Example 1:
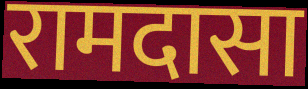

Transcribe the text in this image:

रामदासा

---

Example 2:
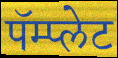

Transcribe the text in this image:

पॅम्प्लेट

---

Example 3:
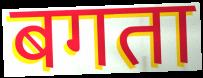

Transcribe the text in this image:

बगता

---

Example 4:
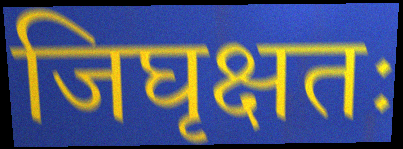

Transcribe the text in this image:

जिघृक्षतः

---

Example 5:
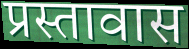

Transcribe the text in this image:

प्रस्तावास